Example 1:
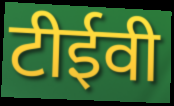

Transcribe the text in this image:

टीईवी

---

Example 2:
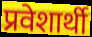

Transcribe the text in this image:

प्रवेशार्थी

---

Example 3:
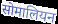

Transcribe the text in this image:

सोमालियन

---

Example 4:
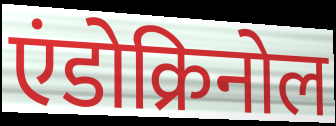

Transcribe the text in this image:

एंडोक्रिनोल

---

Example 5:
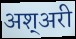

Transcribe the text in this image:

अश्अरी